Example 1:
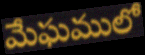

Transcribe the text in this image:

మేఘములో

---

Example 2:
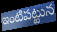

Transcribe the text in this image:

ఇంటిపట్టున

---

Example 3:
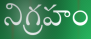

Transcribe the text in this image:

నిగ్రహం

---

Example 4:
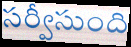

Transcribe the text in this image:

సర్వీసుంది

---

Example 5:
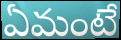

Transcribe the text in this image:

ఏమంటే